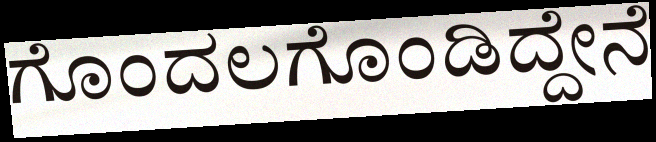
ಗೊಂದಲಗೊಂಡಿದ್ದೇನೆ